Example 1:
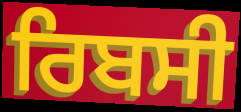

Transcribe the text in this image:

ਰਿਬਸੀ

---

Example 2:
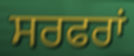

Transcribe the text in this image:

ਸਰਫਰਾਂ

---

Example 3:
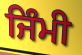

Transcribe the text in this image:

ਜਿੰਮੀ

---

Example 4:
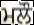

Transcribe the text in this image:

ਮਲੌ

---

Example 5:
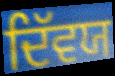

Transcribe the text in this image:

ਦਿੱਵਯ